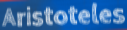
Aristoteles